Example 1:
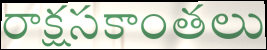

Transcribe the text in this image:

రాక్షసకాంతలు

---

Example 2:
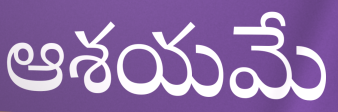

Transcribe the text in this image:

ఆశయమే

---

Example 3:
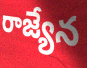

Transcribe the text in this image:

రాజ్యేన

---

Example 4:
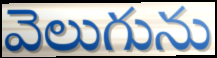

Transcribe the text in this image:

వెలుగును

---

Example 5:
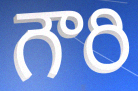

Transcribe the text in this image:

గౌరి